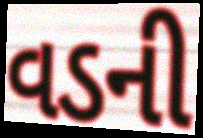
વડની